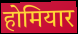
होमियार